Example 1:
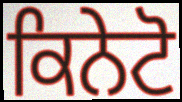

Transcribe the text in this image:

ਕਿਨੇਟੋ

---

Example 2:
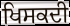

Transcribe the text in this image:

ਖਿਸਕਦੀ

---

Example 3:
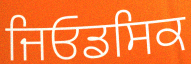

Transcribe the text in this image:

ਜਿਓਡਸਿਕ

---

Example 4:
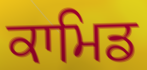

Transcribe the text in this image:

ਕਾਮਿਡ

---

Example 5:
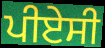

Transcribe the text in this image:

ਪੀਏਸੀ